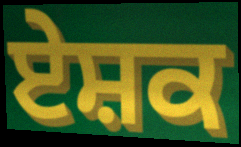
ਏਸ਼ਕ